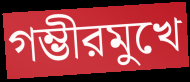
গম্ভীরমুখে